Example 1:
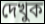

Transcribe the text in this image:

দেখুক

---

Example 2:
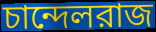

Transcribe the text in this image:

চান্দেলরাজ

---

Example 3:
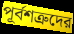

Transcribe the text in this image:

পূর্বশত্রুদের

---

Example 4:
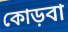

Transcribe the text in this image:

কোড়বা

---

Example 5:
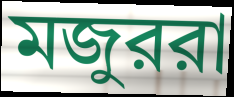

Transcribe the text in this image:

মজুররা